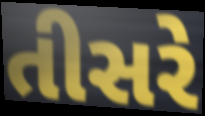
તીસરે